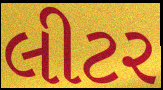
લીટર